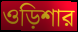
ওড়িশার